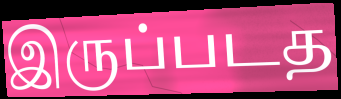
இருப்படத